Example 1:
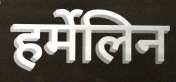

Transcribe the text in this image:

हर्मेलिन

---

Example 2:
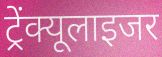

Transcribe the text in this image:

ट्रेंक्यूलाइजर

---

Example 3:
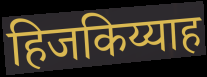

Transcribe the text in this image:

हिजकिय्याह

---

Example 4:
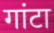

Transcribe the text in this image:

गांटा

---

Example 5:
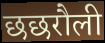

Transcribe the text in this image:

छछरौली